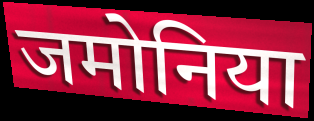
जमोनिया